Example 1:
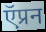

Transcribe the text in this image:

ऍप्रन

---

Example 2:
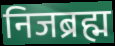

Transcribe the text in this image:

निजब्रह्म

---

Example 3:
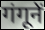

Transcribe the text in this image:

गंगूनें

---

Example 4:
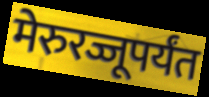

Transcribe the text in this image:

मेरुरज्जूपर्यंत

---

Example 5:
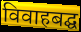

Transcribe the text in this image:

विवाहबद्घ